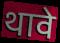
थावे